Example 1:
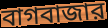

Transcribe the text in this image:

বাগবাজার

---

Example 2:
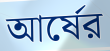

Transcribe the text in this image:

আর্ষের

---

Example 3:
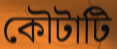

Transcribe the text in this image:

কৌটাটি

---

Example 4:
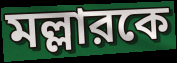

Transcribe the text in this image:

মল্লারকে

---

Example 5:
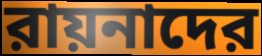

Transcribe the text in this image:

রায়নাদের